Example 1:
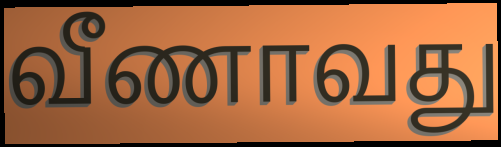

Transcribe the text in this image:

வீணாவது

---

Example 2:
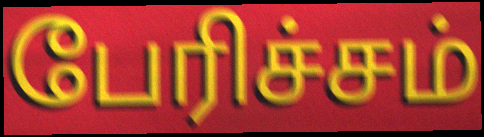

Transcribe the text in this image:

பேரிச்சம்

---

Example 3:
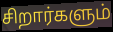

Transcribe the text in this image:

சிறார்களும்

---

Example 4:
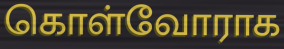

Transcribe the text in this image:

கொள்வோராக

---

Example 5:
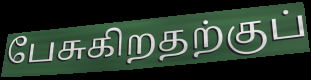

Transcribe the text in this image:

பேசுகிறதற்குப்